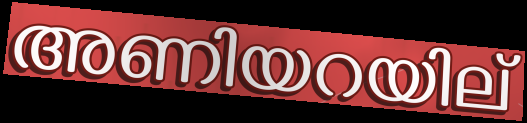
അണിയറയില്